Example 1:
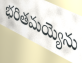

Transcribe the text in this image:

భరితమయ్యెను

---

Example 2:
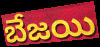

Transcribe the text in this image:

బేజయి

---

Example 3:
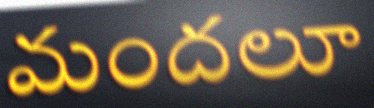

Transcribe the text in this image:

మందలూ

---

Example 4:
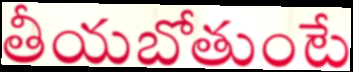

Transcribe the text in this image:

తీయబోతుంటే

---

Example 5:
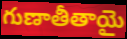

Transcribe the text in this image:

గుణాతీతాయై